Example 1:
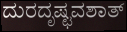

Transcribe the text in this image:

ದುರದೃಷ್ಟವಶಾತ್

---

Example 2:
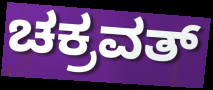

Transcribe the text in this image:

ಚಕ್ರವತ್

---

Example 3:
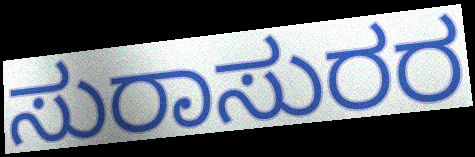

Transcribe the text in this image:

ಸುರಾಸುರರ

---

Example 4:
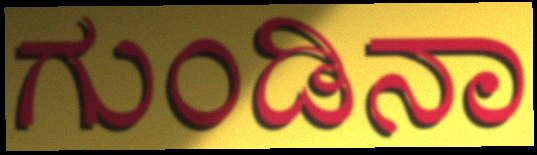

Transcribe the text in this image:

ಗುಂಡಿನಾ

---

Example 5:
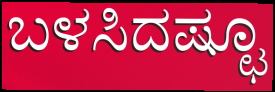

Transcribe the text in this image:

ಬಳಸಿದಷ್ಟೂ